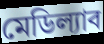
মেডিল্যাব